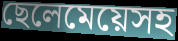
ছেলেমেয়েসহ